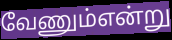
வேணும்என்று